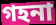
গহনা